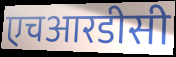
एचआरडीसी